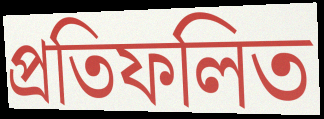
প্ৰতিফলিত